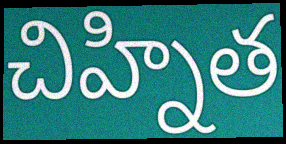
చిహ్నిత